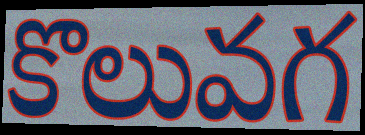
కొలువగ